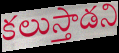
కలుస్తాడని